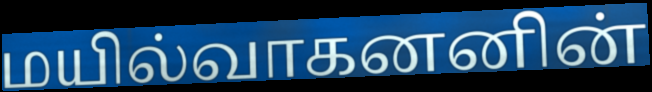
மயில்வாகனனின்